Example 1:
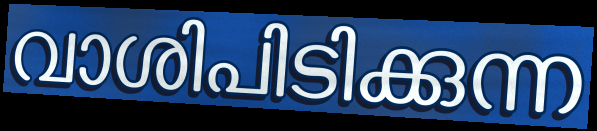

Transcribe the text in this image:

വാശിപിടിക്കുന്ന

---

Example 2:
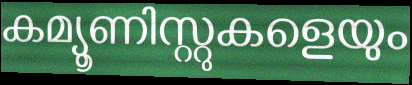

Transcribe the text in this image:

കമ്യൂണിസ്റ്റുകളെയും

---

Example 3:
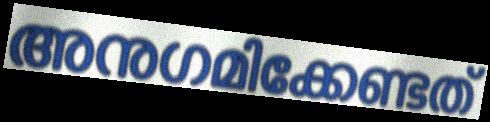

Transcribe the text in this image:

അനുഗമിക്കേണ്ടത്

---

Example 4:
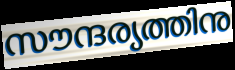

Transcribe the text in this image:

സൗന്ദര്യത്തിനു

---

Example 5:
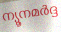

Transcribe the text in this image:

ന്യൂനമർദ്ദ